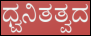
ಧ್ವನಿತತ್ವದ